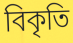
বিকৃতি